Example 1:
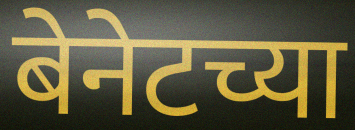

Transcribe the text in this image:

बेनेटच्या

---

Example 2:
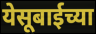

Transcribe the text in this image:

येसूबाईच्या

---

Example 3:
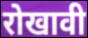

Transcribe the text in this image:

रोखावी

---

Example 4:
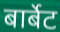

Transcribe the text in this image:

बार्बेट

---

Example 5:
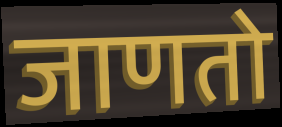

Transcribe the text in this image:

जाणतो